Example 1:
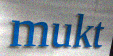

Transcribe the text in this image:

mukt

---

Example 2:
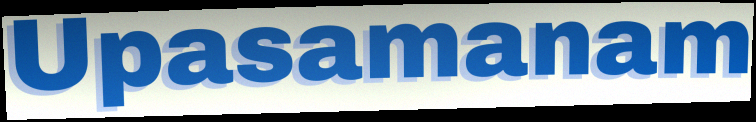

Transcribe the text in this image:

Upasamanam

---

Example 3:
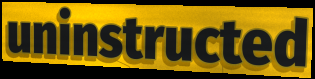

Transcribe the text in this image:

uninstructed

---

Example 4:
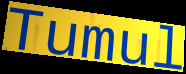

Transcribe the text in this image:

Tumul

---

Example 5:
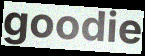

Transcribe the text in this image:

goodie